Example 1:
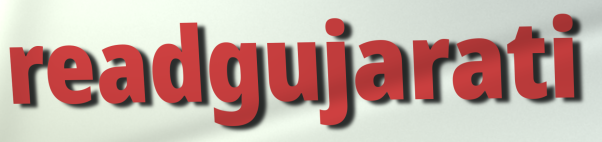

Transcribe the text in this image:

readgujarati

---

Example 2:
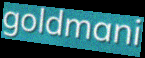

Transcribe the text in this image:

goldmani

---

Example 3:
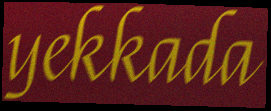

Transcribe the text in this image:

yekkada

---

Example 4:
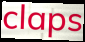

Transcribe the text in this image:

claps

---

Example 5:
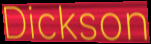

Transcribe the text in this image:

Dickson